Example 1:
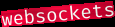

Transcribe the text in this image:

websockets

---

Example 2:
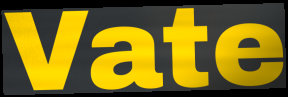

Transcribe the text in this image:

Vate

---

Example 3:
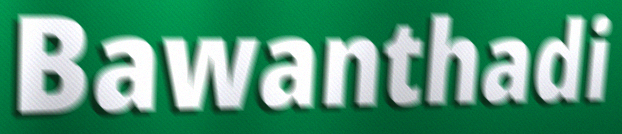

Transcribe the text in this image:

Bawanthadi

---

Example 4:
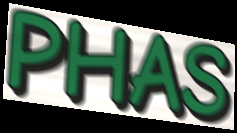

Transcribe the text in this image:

PHAS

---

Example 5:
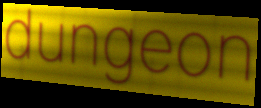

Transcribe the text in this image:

dungeon